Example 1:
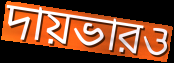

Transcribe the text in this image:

দায়ভারও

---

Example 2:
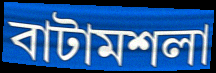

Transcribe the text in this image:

বাটামশলা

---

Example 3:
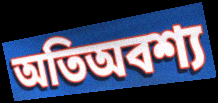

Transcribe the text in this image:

অতিঅবশ্য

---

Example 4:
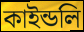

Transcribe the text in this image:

কাইন্ডলি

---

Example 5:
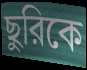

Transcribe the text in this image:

ছুরিকে